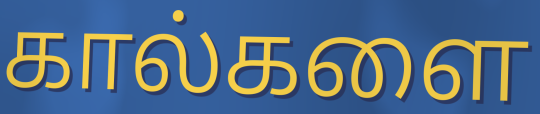
கால்களை